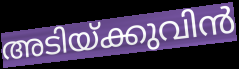
അടിയ്ക്കുവിൻ